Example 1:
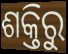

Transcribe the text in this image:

ଶକ୍ତିରୁ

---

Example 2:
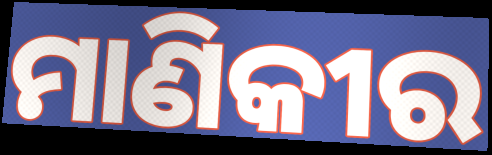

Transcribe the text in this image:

ମାଣିକୀର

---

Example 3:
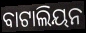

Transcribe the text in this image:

ବାଟାଲିୟନ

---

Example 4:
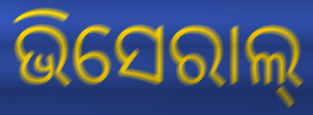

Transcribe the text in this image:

ଭିସେରାଲ୍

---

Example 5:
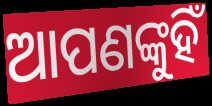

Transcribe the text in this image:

ଆପଣଙ୍କୁହିଁ